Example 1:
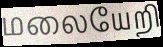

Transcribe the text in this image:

மலையேறி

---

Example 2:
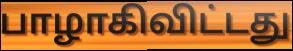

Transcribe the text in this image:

பாழாகிவிட்டது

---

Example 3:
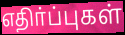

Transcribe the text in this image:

எதிர்ப்புகள்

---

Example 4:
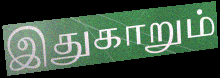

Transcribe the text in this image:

இதுகாறும்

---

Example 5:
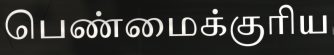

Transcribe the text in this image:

பெண்மைக்குரிய